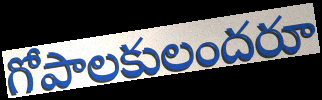
గోపాలకులందరూ